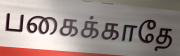
பகைக்காதே